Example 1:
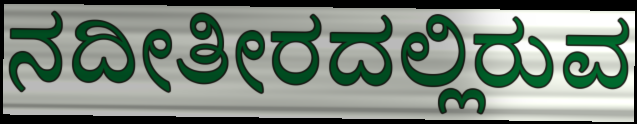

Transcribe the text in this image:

ನದೀತೀರದಲ್ಲಿರುವ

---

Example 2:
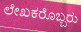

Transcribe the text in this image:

ಲೇಖಕರೊಬ್ಬರು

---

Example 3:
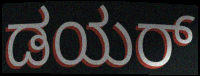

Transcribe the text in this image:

ಡಯರ್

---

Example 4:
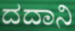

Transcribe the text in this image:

ದದಾನಿ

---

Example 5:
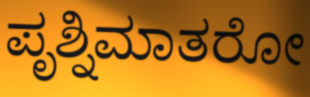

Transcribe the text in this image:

ಪೃಶ್ನಿಮಾತರೋ